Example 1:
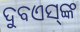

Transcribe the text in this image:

ଦୁବଏସ୍‌ଙ୍କ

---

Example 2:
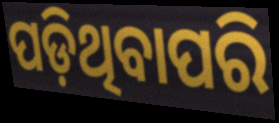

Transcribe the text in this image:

ପଡ଼ିଥିବାପରି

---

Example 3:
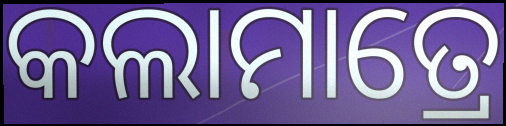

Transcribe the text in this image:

କଲାମାତ୍ରେ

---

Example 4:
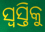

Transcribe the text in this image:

ସ୍ୱସ୍ତିକୁ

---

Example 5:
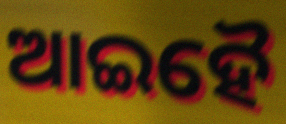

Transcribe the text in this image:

ଆଇହୈ